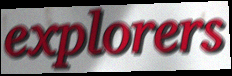
explorers